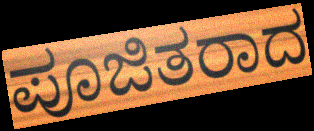
ಪೂಜಿತರಾದ